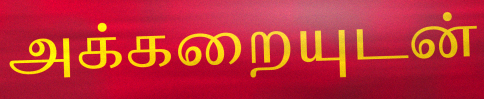
அக்கறையுடன்